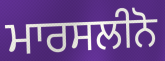
ਮਾਰਸਲੀਨੋ